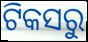
ଟିକସରୁ